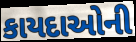
કાયદાઓની